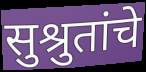
सुश्रुतांचे